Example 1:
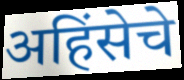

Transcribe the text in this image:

अहिंसेचे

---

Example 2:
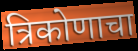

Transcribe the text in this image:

त्रिकोणाचा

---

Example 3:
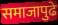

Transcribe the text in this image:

समाजापुढे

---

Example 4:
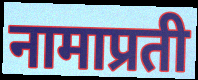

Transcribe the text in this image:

नामाप्रती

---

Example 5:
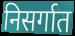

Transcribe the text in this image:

निसर्गात